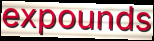
expounds